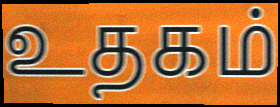
உதகம்